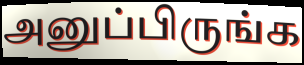
அனுப்பிருங்க